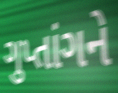
ગુપ્તાંગને